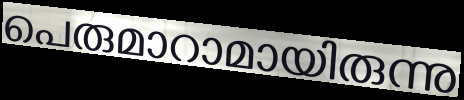
പെരുമാറാമായിരുന്നു